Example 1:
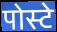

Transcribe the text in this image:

पोस्टे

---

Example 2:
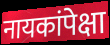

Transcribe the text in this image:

नायकांपेक्षा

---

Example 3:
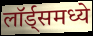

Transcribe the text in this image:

लॉर्ड्समध्ये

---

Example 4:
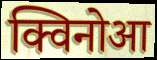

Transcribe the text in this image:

क्विनोआ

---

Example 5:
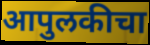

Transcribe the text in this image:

आपुलकीचा